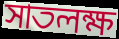
সাতলক্ষ